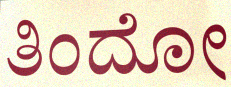
ತಿಂದೋ